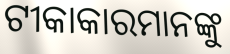
ଟୀକାକାରମାନଙ୍କୁ